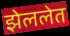
झेललेत